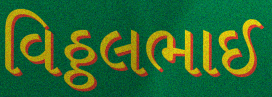
વિઠ્ઠલભાઈ